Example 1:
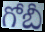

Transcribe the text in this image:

గోబీ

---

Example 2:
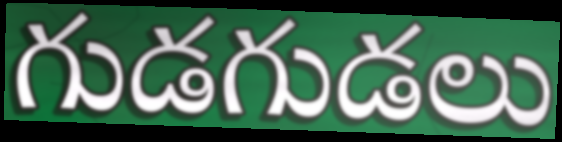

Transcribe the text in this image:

గుడగుడలు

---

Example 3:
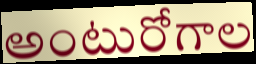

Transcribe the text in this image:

అంటురోగాల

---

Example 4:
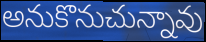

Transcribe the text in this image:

అనుకొనుచున్నావు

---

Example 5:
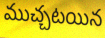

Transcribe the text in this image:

ముచ్చటయిన